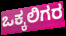
ಒಕ್ಕಲಿಗರ